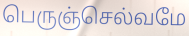
பெருஞ்செல்வமே